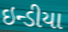
ઇન્ડીયા